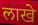
लाखे